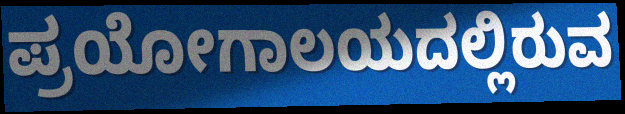
ಪ್ರಯೋಗಾಲಯದಲ್ಲಿರುವ